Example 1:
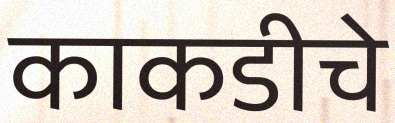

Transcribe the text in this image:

काकडीचे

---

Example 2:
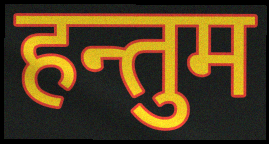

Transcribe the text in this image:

हन्तुम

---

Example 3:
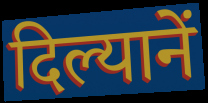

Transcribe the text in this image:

दिल्यानें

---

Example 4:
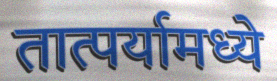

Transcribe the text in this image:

तात्पर्यामध्ये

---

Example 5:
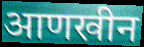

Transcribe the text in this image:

आणखीन